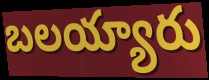
బలయ్యారు